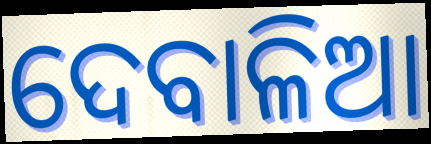
ଦେବାଳିଆ